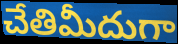
చేతిమీదుగా